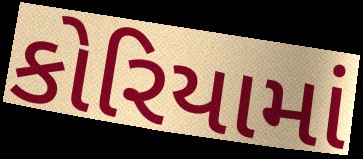
કોરિયામાં